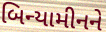
બિન્યામીનને